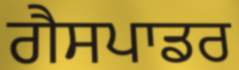
ਗੈਸਪਾਡਰ